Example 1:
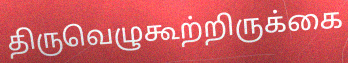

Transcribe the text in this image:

திருவெழுகூற்றிருக்கை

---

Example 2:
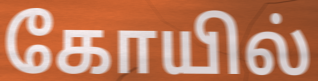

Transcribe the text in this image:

கோயில்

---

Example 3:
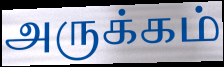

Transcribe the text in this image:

அருக்கம்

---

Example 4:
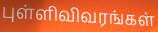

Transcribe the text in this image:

புள்ளிவிவரங்கள்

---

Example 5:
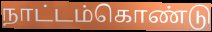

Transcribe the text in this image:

நாட்டம்கொண்டு